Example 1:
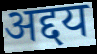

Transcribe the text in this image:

अद्दय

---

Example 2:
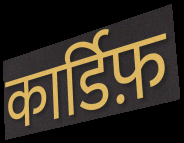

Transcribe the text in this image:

कार्डिफ़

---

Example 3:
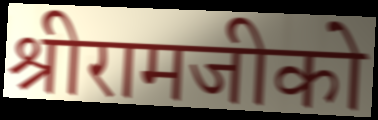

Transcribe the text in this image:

श्रीरामजीको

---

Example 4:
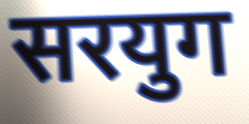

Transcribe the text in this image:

सरयुग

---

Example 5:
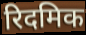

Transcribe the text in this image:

रिदमिक